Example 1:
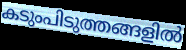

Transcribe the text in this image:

കടുംപിടുത്തങ്ങളിൽ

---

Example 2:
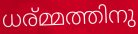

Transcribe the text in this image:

ധര്മ്മത്തിനു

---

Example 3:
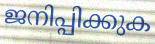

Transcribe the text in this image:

ജനിപ്പിക്കുക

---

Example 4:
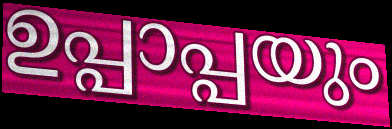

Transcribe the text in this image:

ഉപ്പാപ്പയും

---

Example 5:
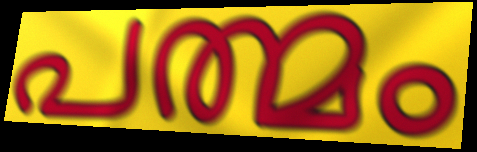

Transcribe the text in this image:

പത്മം